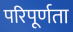
परिपूर्णता